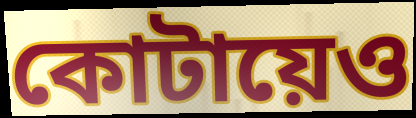
কোটায়েও